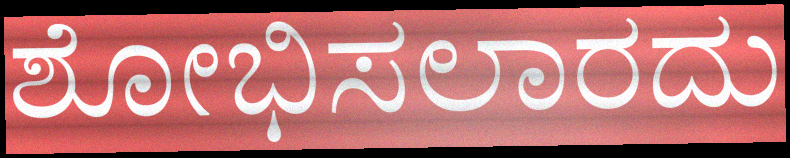
ಶೋಭಿಸಲಾರದು